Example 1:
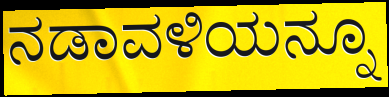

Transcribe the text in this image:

ನಡಾವಳಿಯನ್ನೂ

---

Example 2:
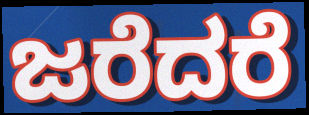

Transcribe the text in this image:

ಜರೆದರೆ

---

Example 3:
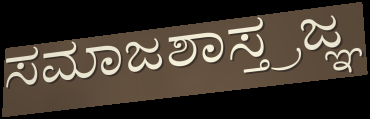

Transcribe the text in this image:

ಸಮಾಜಶಾಸ್ತ್ರಜ್ಞ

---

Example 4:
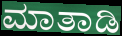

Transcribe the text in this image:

ಮಾತಾಡಿ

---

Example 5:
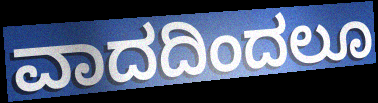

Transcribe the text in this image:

ವಾದದಿಂದಲೂ